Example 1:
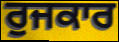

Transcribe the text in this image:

ਰੁਜਕਾਰ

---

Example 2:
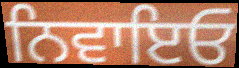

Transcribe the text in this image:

ਨਿਵਾਇਓ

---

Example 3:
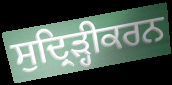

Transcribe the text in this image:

ਸੁਦ੍ਰਿੜ੍ਹੀਕਰਨ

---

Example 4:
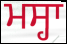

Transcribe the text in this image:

ਮਸ੍ਹਾ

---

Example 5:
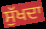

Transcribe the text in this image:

ਸੁੱਖਦਾ